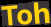
Toh